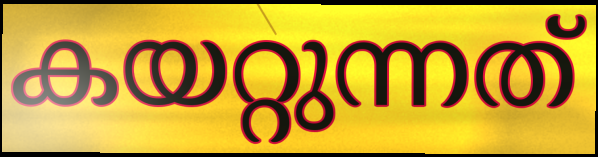
കയറ്റുന്നത്